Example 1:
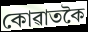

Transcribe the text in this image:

কোৱাতকৈ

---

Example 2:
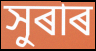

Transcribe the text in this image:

সুৰাৰ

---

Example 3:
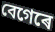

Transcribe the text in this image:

বেগেৰে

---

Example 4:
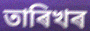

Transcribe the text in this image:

তাৰিখৰ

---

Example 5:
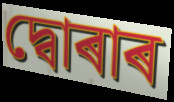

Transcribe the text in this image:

দ্বোৰাৰ